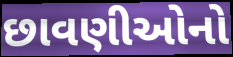
છાવણીઓનો